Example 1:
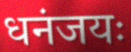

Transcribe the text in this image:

धनंजयः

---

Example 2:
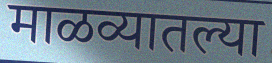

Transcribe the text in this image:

माळव्यातल्या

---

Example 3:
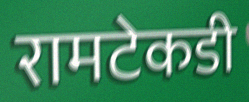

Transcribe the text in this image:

रामटेकडी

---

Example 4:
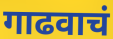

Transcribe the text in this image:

गाढवाचं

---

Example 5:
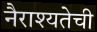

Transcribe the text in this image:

नैराश्यतेची